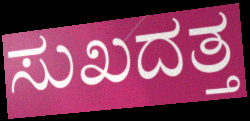
ಸುಖದತ್ತ